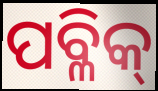
ପବ୍ଳିକ୍